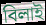
বিলাই